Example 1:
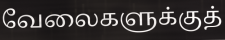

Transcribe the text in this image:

வேலைகளுக்குத்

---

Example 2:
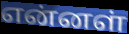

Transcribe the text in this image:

என்னள்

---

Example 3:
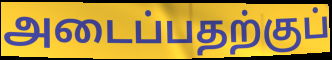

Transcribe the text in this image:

அடைப்பதற்குப்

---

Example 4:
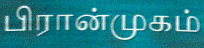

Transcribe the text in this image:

பிரான்முகம்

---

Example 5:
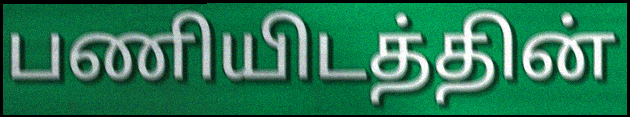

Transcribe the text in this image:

பணியிடத்தின்